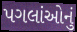
પગલાંઓનું